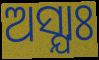
ଅସ୍ଯାଃ